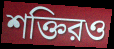
শক্তিরও